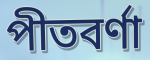
পীতবৰ্ণা